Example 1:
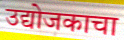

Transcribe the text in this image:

उद्योजकाचा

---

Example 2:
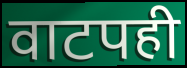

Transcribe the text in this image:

वाटपही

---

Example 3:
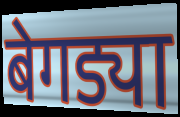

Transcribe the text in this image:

बेगड्या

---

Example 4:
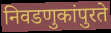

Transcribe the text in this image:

निवडणुकांपुरते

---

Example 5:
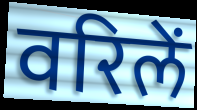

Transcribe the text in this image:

वरिलें